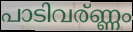
പാടിവര്ണ്ണം